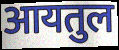
आयतुल